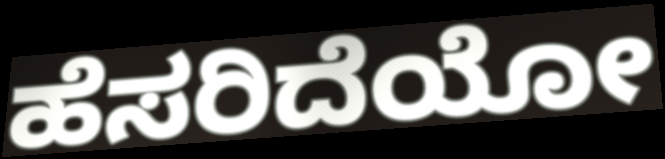
ಹೆಸರಿದೆಯೋ